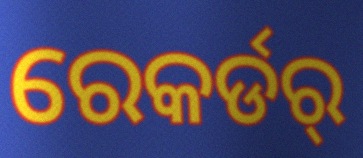
ରେକର୍ଡର୍